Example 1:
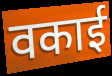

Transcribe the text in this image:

वकाई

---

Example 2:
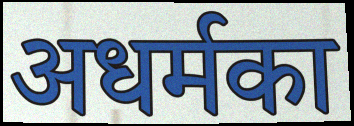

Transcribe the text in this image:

अधर्मका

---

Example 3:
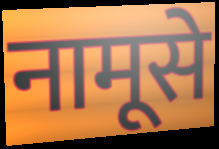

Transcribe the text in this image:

नामूसे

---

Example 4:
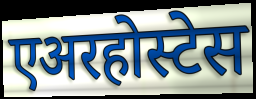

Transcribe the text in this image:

एअरहोस्टेस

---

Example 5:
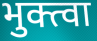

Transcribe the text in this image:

भुक्त्वा